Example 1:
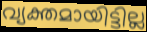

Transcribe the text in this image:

വ്യക്തമായിട്ടില്ല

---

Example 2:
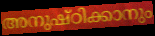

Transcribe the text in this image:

അനുഷ്ഠിക്കാനും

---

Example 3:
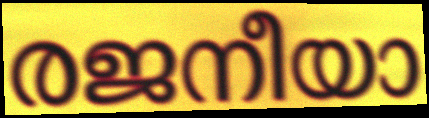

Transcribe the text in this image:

രജനീയാ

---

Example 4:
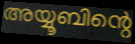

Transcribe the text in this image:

അയ്യൂബിന്റെ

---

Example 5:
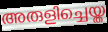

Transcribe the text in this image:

അരുളിച്ചെയ്ത